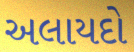
અલાયદો